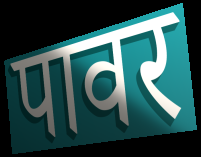
पावर